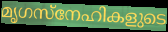
മൃഗസ്നേഹികളുടെ